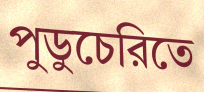
পুডুচেরিতে